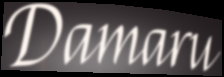
Damaru